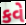
કવે